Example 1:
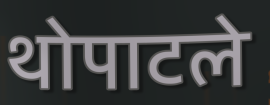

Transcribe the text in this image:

थोपाटले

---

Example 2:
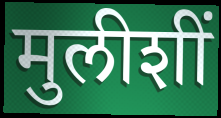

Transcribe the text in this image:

मुलीशीं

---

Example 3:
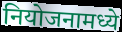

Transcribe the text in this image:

नियोजनामध्ये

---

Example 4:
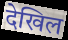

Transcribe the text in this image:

देखिल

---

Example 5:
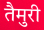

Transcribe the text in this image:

तैमुरी